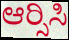
ಆರ್‍ಸಿಸಿ